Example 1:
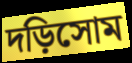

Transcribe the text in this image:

দড়িসোম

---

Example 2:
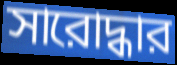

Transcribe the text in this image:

সারোদ্ধার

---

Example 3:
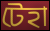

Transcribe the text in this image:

টেহা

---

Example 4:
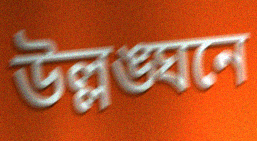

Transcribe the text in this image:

উল্লঙ্ঘনে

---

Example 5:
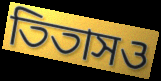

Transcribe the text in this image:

তিতাসও